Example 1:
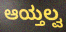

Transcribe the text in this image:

ಆಯ್ತಲ್ವ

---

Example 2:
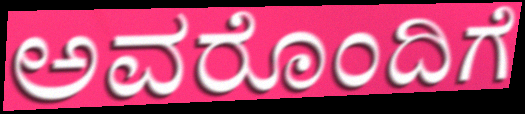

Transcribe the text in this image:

ಅವರೊಂದಿಗೆ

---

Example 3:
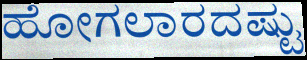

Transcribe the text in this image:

ಹೋಗಲಾರದಷ್ಟು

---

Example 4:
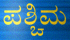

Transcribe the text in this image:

ಪಶ್ಚಿಮ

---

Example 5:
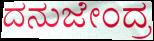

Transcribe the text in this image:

ದನುಜೇಂದ್ರ